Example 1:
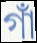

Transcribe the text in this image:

গাঁ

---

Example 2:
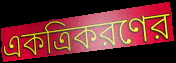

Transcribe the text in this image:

একত্রিকরণের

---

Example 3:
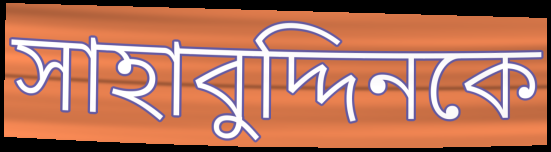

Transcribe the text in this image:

সাহাবুদ্দিনকে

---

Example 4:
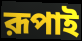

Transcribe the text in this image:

রূপাই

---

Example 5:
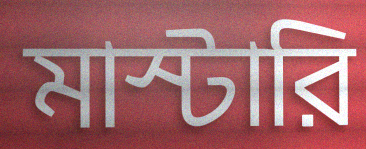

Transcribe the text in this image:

মাস্টারি